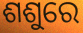
ଶଶୁରେ